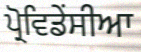
ਪ੍ਰੋਵਿਡੇਂਸੀਆ